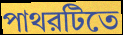
পাথরটিতে